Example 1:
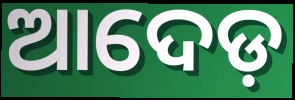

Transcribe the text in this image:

ଆଦେଡ଼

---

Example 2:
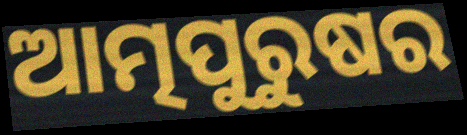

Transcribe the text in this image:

ଆତ୍ମପୁରୁଷର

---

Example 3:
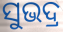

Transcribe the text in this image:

ସୁଭଦ୍ର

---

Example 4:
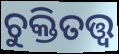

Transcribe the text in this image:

ଚୁକ୍ତିତତ୍ତ୍ଵ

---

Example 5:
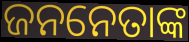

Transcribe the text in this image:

ଜନନେତାଙ୍କ